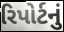
રિપોર્ટનું